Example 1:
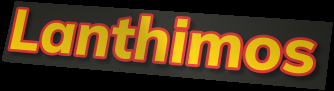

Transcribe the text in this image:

Lanthimos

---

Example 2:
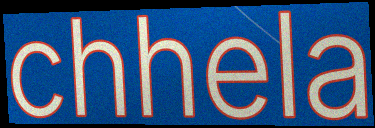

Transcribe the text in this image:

chhela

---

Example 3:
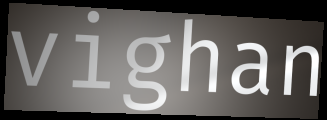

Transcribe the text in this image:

vighan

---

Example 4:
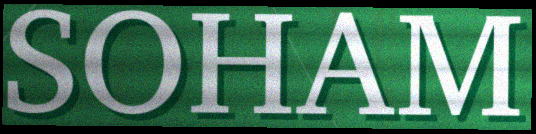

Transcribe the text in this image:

SOHAM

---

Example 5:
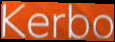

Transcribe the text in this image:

Kerbo